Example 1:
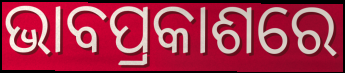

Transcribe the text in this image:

ଭାବପ୍ରକାଶରେ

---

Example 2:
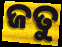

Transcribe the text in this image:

ଜତୁ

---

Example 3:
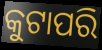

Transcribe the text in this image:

କୁଟାପରି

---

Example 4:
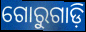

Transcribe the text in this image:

ଗୋରୁଗାଡ଼ି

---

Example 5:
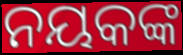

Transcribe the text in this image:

ନୟକଙ୍କ